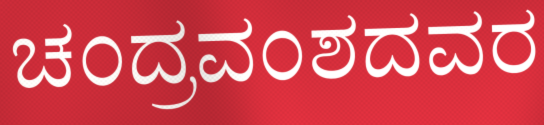
ಚಂದ್ರವಂಶದವರ